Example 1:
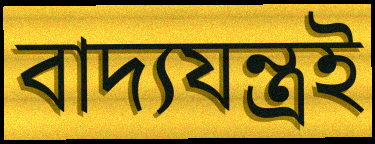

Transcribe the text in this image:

বাদ্যযন্ত্ৰই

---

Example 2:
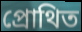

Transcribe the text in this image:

প্ৰোথিত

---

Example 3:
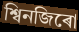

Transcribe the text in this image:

শ্বিনজিৰো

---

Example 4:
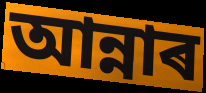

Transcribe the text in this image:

আন্নাৰ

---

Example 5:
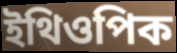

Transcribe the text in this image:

ইথিওপিক